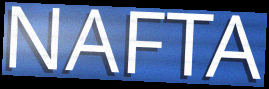
NAFTA